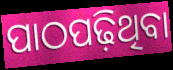
ପାଠପଢ଼ିଥିବା